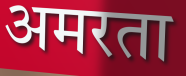
अमरता